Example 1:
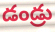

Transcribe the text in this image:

డండ్రు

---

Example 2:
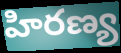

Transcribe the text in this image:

హిరణ్య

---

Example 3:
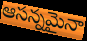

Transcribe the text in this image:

ఆసన్నమైనా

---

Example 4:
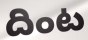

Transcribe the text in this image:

దింట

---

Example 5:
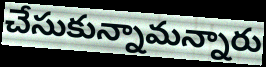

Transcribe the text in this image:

చేసుకున్నామన్నారు